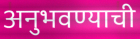
अनुभवण्याची